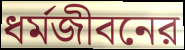
ধর্মজীবনের